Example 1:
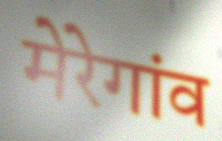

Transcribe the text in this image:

मेरेगांव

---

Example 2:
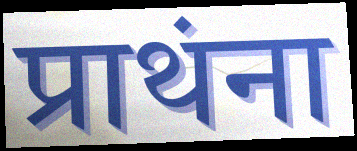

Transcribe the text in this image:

प्राथंना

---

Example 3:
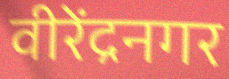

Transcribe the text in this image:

वीरेंद्रनगर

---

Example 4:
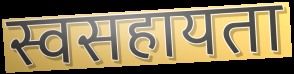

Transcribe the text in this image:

स्वसहायता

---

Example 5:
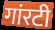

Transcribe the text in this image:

गांरटी